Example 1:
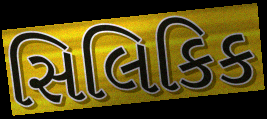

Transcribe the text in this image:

સિલિકિક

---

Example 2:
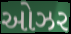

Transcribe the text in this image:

ઓઝર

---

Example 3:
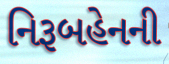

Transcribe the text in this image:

નિરૂબહેનની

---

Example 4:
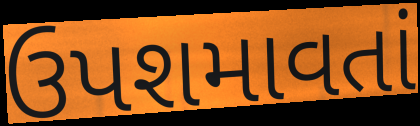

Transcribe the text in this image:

ઉપશમાવતાં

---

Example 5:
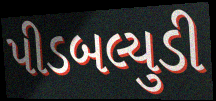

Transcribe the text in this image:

પીડબલ્યુડી